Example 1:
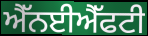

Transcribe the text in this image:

ਐੱਨਈਐੱਫਟੀ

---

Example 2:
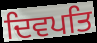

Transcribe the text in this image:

ਦਿਵਪਤਿ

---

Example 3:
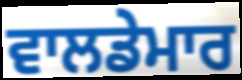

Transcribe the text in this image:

ਵਾਲਡੇਮਾਰ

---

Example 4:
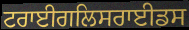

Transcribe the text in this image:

ਟਰਾਈਗਲਿਸਰਾਈਡਸ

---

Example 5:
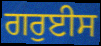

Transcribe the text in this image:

ਗਰੁਈਸ